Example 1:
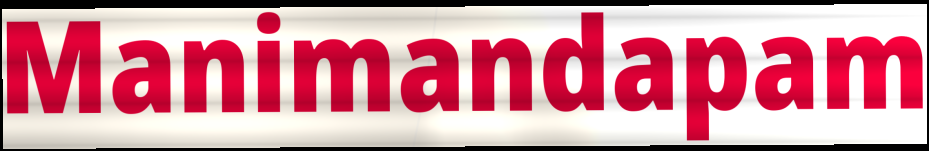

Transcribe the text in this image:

Manimandapam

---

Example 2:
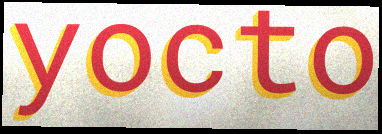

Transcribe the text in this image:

yocto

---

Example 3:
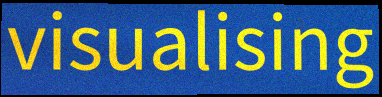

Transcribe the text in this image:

visualising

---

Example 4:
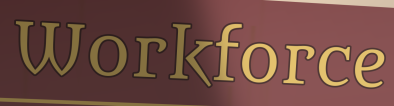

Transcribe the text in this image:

Workforce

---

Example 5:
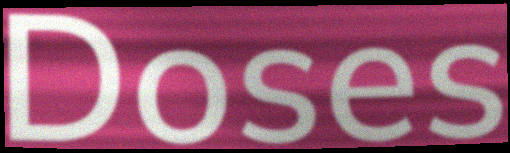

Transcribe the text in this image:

Doses